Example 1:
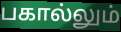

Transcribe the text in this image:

பகால்லும்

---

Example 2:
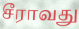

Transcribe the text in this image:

சீராவது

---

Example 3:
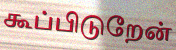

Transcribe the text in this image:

கூப்பிடுறேன்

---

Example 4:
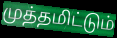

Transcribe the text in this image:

முத்தமிட்டும்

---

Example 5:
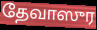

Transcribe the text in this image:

தேவாஸுர